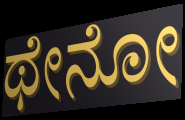
ಥೇನೋ